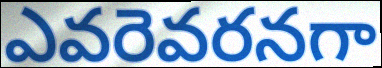
ఎవరెవరనగా